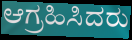
ಆಗ್ರಹಿಸಿದರು